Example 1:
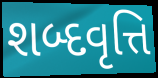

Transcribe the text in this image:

શબ્દવૃત્તિ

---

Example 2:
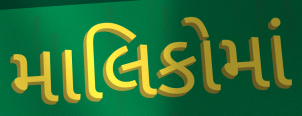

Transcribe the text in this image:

માલિકોમાં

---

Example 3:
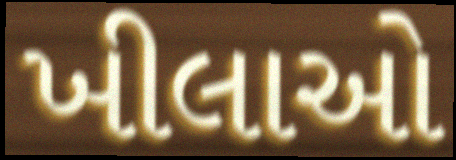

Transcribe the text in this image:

ખીલાઓ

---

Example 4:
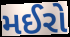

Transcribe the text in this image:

મઈરો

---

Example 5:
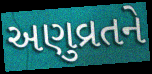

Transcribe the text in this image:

અણુવ્રતને